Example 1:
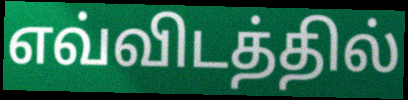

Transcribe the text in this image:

எவ்விடத்தில்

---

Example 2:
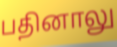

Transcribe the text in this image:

பதினாலு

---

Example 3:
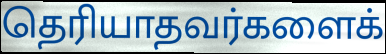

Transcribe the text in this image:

தெரியாதவர்களைக்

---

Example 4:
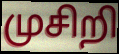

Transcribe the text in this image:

முசிறி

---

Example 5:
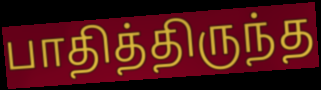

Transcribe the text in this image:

பாதித்திருந்த